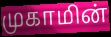
முகாமின்